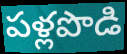
పళ్లపొడి